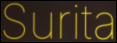
Surita